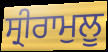
ਸ੍ਰੀਰਾਮੁਲੂ